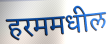
हरममधील